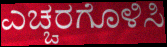
ಎಚ್ಚರಗೊಳಿಸಿ